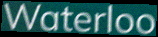
Waterloo